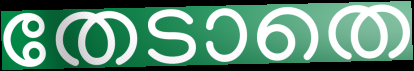
തേടാതെ